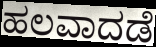
ಹಲವಾದಡೆ